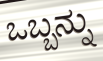
ಒಬ್ಬನ್ನು